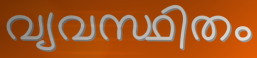
വ്യവസ്ഥിതം